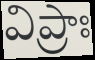
విప్రాః